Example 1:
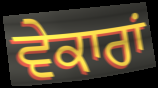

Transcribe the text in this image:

ਵੇਕਾਰਾਂ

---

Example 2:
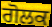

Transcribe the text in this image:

ਗੋਲਕ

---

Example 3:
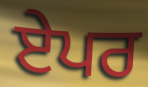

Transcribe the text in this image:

ਏਪਰ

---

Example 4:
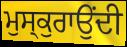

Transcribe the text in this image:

ਮੁਸ੍ਕੁਰਾਉਂਦੀ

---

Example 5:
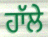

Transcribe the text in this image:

ਹਾੱਲੇ